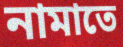
নামাতে